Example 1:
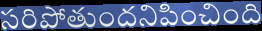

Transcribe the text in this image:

సరిపోతుందనిపించింది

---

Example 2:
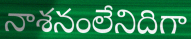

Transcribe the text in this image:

నాశనంలేనిదిగా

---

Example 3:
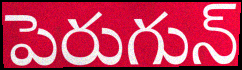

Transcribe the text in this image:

పెరుగున్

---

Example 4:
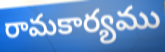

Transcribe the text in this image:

రామకార్యము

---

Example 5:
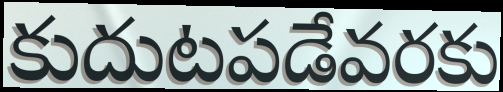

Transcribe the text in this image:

కుదుటపడేవరకు